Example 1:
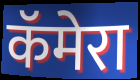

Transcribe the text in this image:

कॅमेरा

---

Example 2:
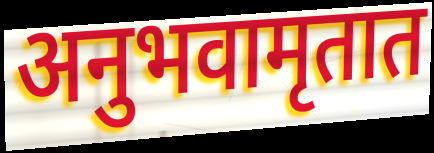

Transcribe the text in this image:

अनुभवामृतात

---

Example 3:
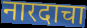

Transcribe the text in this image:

नारदाचा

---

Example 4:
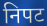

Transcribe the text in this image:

निपट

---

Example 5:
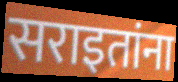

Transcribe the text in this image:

सराइतांना